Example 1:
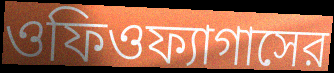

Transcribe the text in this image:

ওফিওফ্যাগাসের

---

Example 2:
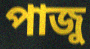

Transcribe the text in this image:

পাজু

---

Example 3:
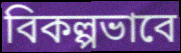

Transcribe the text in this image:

বিকল্পভাবে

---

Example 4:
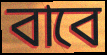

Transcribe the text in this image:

বাবে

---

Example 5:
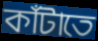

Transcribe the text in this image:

কাঁটাতে